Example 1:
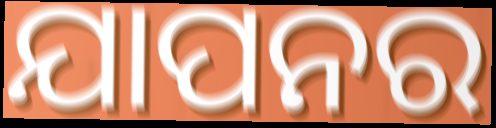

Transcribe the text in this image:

ଯାପନର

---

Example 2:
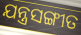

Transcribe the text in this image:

ଯନ୍ତ୍ରସଙ୍ଗୀତ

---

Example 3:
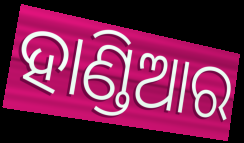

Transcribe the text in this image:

ହାଣ୍ଡିଆର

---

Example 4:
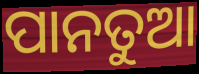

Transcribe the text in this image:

ପାନତୁଆ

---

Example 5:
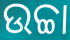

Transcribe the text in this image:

ଉଚ୍ଚା